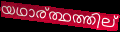
യഥാര്ത്ഥത്തില്